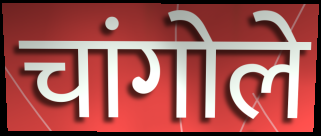
चांगोले